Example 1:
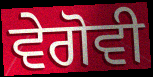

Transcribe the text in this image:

ਵੇਗੋਵੀ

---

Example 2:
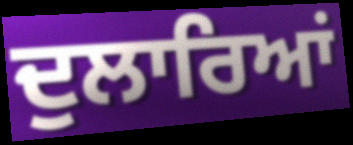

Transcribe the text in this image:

ਦੁਲਾਰਿਆਂ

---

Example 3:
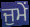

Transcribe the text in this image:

ਜੁਮੇਂ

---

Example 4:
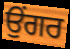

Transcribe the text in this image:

ਉਂਗਰ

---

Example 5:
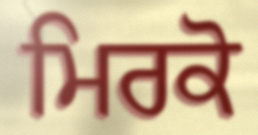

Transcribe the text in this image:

ਮਿਰਕੋ